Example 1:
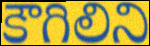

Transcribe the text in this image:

కౌగిలిని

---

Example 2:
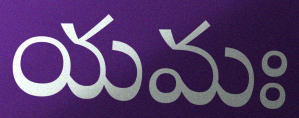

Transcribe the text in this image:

యమః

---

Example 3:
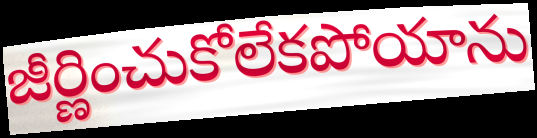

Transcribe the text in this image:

జీర్ణించుకోలేకపోయాను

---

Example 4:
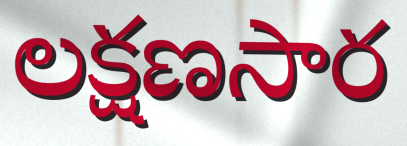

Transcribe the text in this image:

లక్షణసార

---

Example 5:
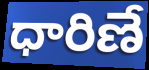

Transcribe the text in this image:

ధారిణే